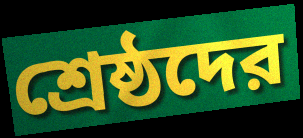
শ্রেষ্ঠদের